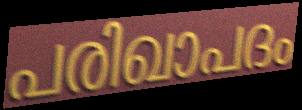
പരിഖാപദം